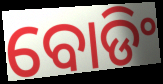
ବୋଡିଂ